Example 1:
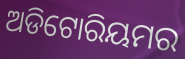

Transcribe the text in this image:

ଅଡିଟୋରିୟମର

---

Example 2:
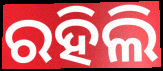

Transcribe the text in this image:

ରହିଲି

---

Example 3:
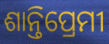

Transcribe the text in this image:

ଶାନ୍ତିପ୍ରେମୀ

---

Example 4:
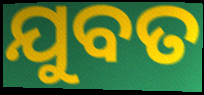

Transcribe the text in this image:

ଯୁବତ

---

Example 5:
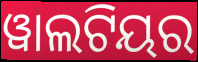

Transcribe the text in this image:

ୱାଲଟିୟର